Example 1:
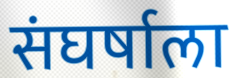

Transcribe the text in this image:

संघर्षाला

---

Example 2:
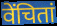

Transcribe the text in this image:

वेंचितां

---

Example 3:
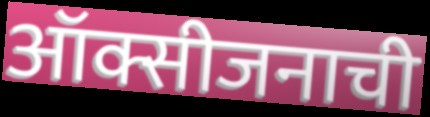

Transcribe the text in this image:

ऑक्सीजनाची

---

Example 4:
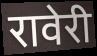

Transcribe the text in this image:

रावेरी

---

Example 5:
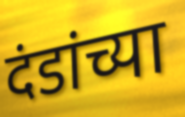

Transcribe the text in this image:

दंडांच्या